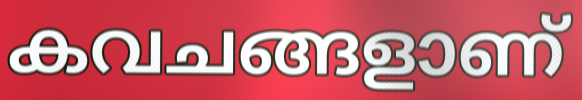
കവചങ്ങളാണ്